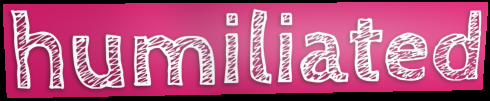
humiliated